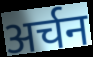
अर्चन